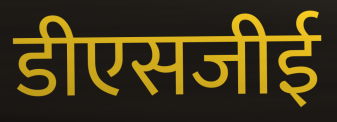
डीएसजीई